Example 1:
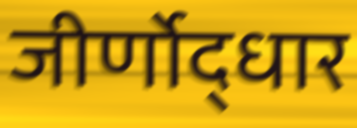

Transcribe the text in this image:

जीर्णोद्धार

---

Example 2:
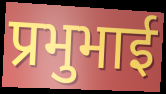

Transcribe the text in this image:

प्रभुभाई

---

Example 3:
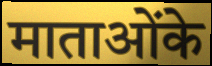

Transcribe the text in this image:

माताओंके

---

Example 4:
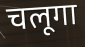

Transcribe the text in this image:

चलूगा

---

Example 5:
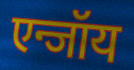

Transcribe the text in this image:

एन्जॉय